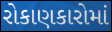
રોકાણકારોમાં